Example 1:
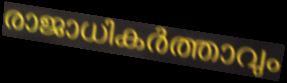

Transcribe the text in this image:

രാജാധികർത്താവും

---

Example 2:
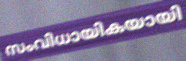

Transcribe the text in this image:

സംവിധായികയായി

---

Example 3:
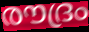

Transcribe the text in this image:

രൗദ്രം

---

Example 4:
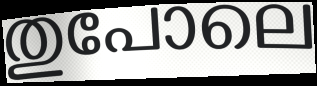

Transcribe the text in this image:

തുപോലെ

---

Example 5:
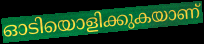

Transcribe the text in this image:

ഓടിയൊളിക്കുകയാണ്